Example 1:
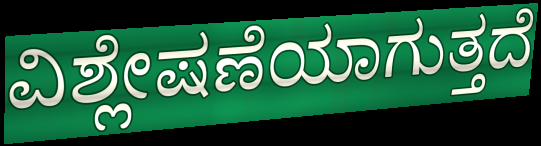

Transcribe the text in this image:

ವಿಶ್ಲೇಷಣೆಯಾಗುತ್ತದೆ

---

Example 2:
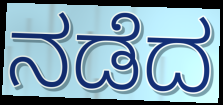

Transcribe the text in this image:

ನಡೆದ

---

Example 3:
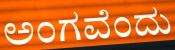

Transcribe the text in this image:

ಅಂಗವೆಂದು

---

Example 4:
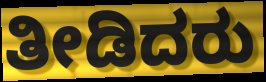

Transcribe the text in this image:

ತೀಡಿದರು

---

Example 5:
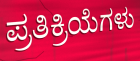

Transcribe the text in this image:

ಪ್ರತಿಕ್ರಿಯೆಗಳು